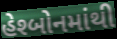
હેશ્બોનમાંથી